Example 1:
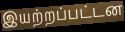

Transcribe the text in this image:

இயற்றப்பட்டன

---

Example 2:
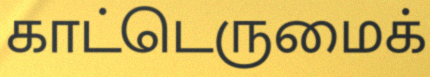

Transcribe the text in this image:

காட்டெருமைக்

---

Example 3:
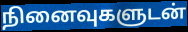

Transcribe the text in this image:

நினைவுகளுடன்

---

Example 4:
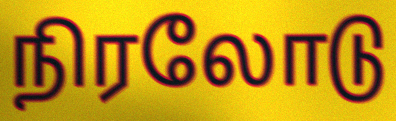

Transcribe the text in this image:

நிரலோடு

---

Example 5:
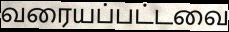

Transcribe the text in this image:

வரையப்பட்டவை